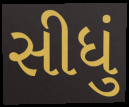
સીધું